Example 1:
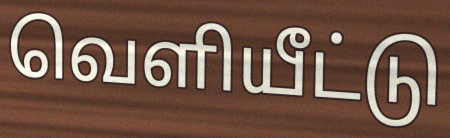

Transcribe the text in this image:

வெளியீட்டு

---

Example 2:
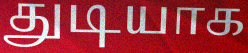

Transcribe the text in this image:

துடியாக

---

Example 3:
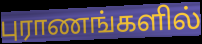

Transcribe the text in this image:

புராணங்களில்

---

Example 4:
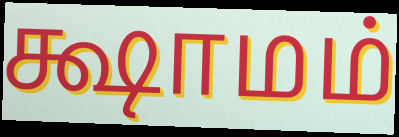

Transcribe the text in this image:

க்ஷாமம்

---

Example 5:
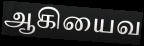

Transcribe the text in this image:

ஆகியைவ